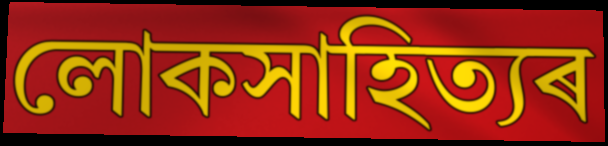
লোকসাহিত্যৰ